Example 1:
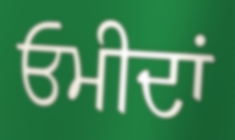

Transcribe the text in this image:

ਓਮੀਦਾਂ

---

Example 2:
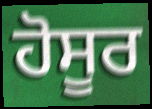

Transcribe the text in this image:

ਹੋਸੂਰ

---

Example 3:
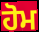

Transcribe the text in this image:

ਹੋਮ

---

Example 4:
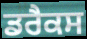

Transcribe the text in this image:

ਡਰੈਕਸ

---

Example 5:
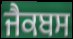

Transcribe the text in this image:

ਜੈਕਬਸ